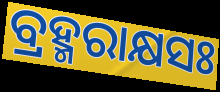
ବ୍ରହ୍ମରାକ୍ଷସଃ